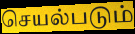
செயல்படும்